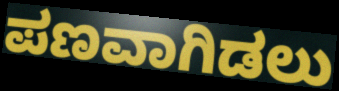
ಪಣವಾಗಿಡಲು